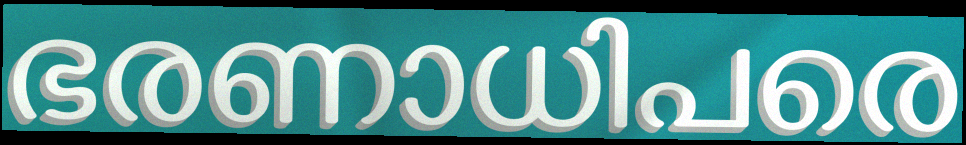
ഭരണാധിപരെ